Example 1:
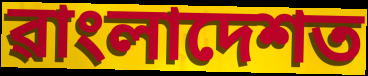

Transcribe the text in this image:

ৱাংলাদেশত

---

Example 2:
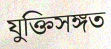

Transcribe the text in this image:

যুক্তিসঙ্গত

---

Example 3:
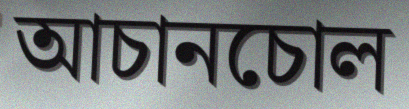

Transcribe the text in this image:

আচানচোল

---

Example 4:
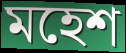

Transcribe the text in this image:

মহেশ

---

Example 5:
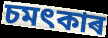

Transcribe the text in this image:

চমৎকাৰ